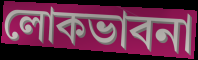
লোকভাবনা